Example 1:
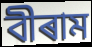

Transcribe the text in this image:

বীৰাম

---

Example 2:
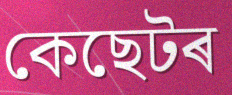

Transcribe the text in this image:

কেছেটৰ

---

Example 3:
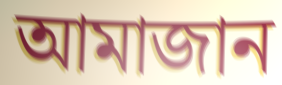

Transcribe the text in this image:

আমাজান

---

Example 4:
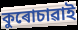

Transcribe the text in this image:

কুৰোচাৱাই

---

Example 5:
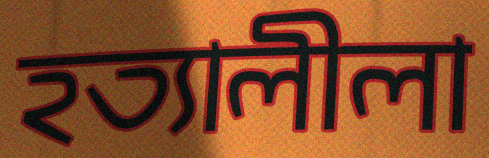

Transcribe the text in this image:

হত্যালীলা